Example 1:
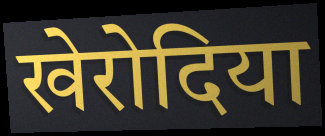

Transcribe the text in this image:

खेरोदिया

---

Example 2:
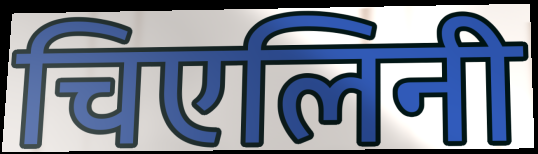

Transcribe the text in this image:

चिएलिनी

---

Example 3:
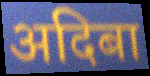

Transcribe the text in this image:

अदिबा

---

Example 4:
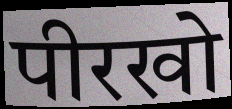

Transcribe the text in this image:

पीरखो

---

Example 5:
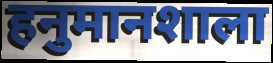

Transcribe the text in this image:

हनुमानशाला